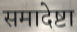
समादेष्टा